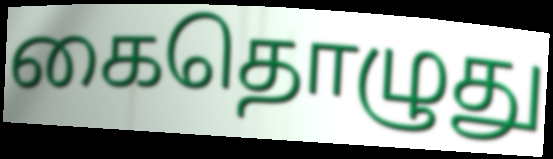
கைதொழுது